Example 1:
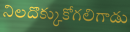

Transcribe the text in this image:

నిలదొక్కుకోగలిగాడు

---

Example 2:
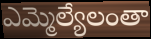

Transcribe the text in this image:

ఎమ్మెల్యేలంతా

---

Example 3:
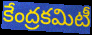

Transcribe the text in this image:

కేంద్రకమిటీ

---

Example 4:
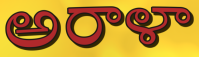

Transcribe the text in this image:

అరాళా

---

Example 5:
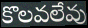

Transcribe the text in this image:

కొలవలేవు